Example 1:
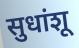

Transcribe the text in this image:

सुधांशू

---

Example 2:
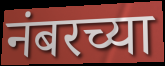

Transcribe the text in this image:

नंबरच्या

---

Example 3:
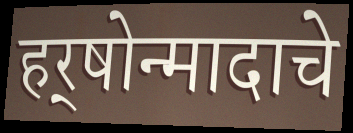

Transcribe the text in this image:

हर्षोन्मादाचे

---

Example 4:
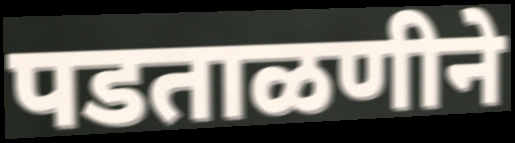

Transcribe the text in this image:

पडताळणीने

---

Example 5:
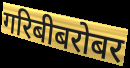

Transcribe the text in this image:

गरिबीबरोबर